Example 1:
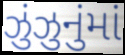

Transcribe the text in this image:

ઝુંઝુનુંમાં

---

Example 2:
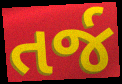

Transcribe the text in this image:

તર્જ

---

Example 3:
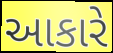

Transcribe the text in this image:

આકારે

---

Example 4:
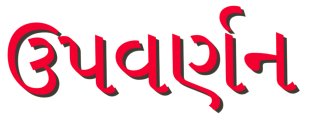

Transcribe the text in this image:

ઉપવર્ણન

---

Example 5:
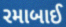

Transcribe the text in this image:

રમાબાઈ